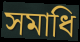
সমাধি